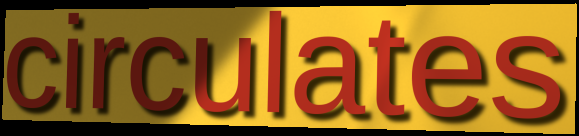
circulates